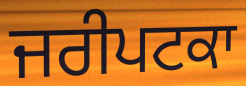
ਜਰੀਪਟਕਾ